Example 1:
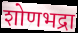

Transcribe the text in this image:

शोणभद्रा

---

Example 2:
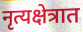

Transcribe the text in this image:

नृत्यक्षेत्रात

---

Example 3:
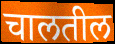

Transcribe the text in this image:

चालतील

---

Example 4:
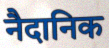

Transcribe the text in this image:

नैदानिक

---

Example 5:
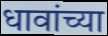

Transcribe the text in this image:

धावांच्या